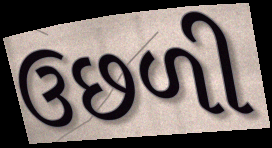
ઉછળી